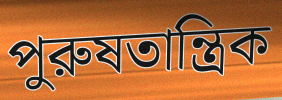
পুরুষতান্ত্রিক